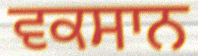
ਵਕਸਾਨ